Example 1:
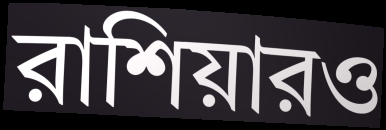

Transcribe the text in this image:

রাশিয়ারও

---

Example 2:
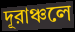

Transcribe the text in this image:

দূরাঞ্চলে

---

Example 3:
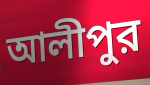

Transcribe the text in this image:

আলীপুর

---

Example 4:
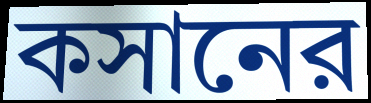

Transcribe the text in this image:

কসানের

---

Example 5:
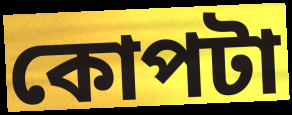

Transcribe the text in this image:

কোপটা